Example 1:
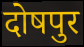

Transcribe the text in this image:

दोषपुर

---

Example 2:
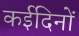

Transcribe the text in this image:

कईदिनों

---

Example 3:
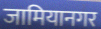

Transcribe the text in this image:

जामियानगर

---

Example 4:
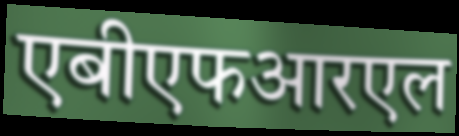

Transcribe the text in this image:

एबीएफआरएल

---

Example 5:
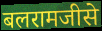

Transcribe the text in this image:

बलरामजीसे